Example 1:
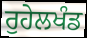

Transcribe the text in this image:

ਰੁਹੇਲਖੰਡ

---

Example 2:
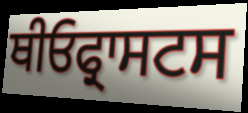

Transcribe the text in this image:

ਥੀਓਫ੍ਰਾਸਟਸ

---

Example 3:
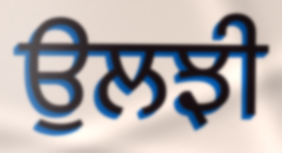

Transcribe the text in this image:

ਉਲਝੀ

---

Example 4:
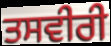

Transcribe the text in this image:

ਤਸਵੀਰੀ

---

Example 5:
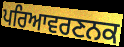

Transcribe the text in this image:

ਪਰਿਆਵਰਣਨਕ